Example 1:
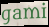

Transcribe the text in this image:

gami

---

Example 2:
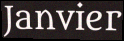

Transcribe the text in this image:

Janvier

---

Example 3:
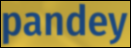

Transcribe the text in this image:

pandey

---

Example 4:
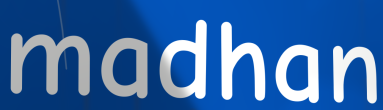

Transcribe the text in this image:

madhan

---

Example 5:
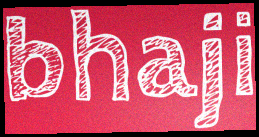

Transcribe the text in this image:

bhaji